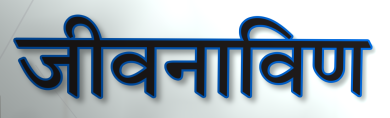
जीवनाविण